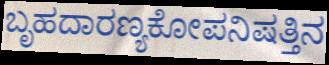
ಬೃಹದಾರಣ್ಯಕೋಪನಿಷತ್ತಿನ